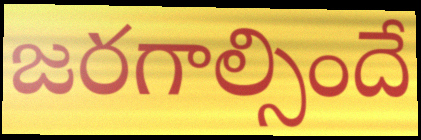
జరగాల్సిందే